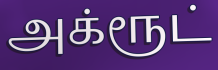
அக்ரூட்